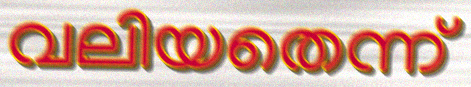
വലിയതെന്ന്